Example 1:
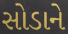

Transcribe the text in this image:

સોડાને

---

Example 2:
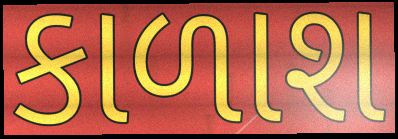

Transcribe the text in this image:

કાળાશ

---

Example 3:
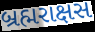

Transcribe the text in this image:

બ્રહ્મરાક્ષસ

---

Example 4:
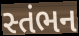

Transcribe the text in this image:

સ્તંભન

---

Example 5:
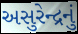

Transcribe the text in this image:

અસુરેન્દ્રનું